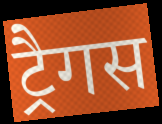
ट्रैगस